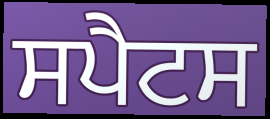
ਸਪੈਟਸ